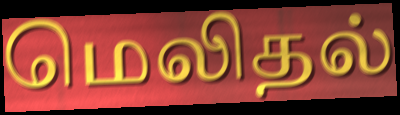
மெலிதல்